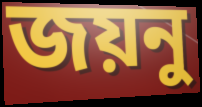
জয়নু